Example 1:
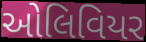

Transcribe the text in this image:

ઓલિવિયર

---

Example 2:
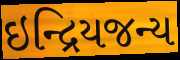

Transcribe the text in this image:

ઇન્દ્રિયજન્ય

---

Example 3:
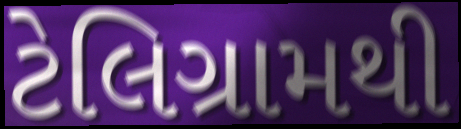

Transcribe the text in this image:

ટેલિગ્રામથી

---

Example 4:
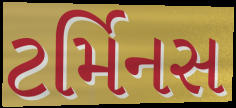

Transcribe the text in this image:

ટર્મિનસ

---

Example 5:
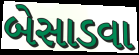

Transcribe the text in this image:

બેસાડવા